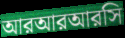
আরআরআরসি